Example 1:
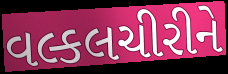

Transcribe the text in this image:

વલ્કલચીરીને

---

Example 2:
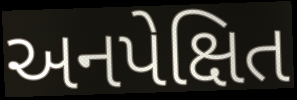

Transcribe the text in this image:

અનપેક્ષિત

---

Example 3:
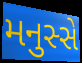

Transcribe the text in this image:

મનુસ્સે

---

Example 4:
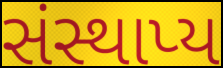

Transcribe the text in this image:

સંસ્થાપ્ય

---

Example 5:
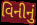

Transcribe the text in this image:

વિનીનું